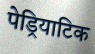
पेड्रियाटिक